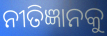
ନୀତିଜ୍ଞାନକୁ